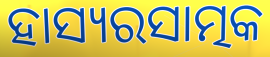
ହାସ୍ୟରସାତ୍ମକ